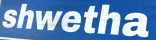
shwetha